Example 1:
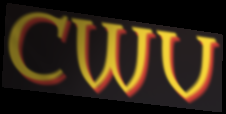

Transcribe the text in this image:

CWU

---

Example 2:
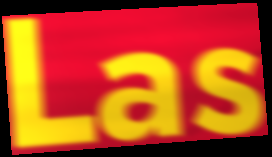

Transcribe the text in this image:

Las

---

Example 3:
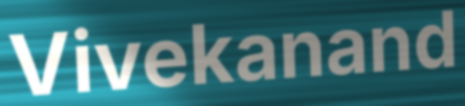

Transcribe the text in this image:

Vivekanand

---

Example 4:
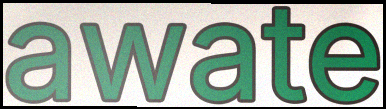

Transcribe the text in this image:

awate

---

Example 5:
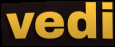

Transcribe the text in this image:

vedi